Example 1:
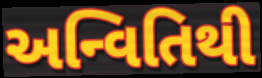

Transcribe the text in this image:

અન્વિતિથી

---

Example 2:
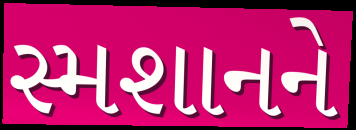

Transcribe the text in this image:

સ્મશાનને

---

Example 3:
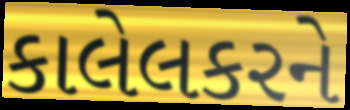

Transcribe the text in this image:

કાલેલકરને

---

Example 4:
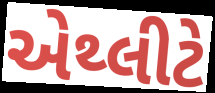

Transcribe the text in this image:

એથ્લીટે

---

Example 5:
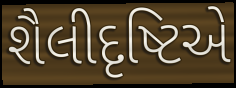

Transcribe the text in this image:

શૈલીદૃષ્ટિએ